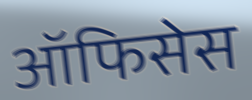
ऑफिसेस